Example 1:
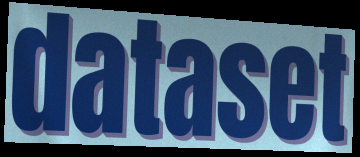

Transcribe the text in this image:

dataset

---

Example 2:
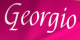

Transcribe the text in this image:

Georgio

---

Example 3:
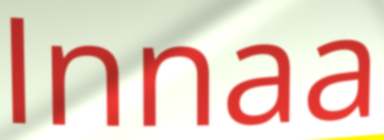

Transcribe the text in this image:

Innaa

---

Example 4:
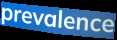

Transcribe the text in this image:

prevalence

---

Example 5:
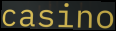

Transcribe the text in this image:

casino